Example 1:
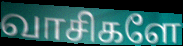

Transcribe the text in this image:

வாசிகளே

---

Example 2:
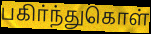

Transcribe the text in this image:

பகிர்ந்துகொள்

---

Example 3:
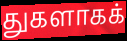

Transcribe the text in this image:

துகளாகக்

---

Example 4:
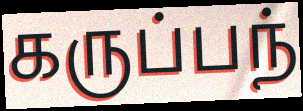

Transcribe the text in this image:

கருப்பந்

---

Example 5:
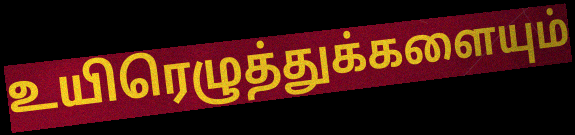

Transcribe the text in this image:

உயிரெழுத்துக்களையும்